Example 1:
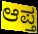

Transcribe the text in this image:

ಆಪ್ತ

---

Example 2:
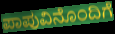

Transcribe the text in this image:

ಪಾಪುವಿನೊಂದಿಗೆ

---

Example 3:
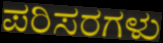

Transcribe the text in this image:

ಪರಿಸರಗಳು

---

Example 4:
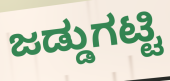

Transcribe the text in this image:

ಜಡ್ಡುಗಟ್ಟಿ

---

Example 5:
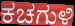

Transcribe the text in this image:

ಕಚಗುಳಿ